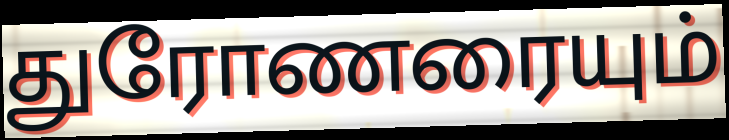
துரோணரையும்